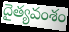
దైత్యవంశం